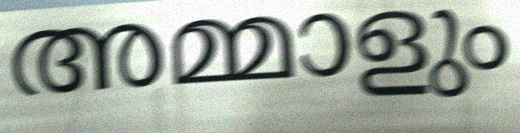
അമ്മാളും